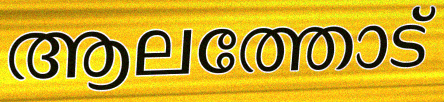
ആലത്തോട്